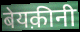
बेयक़ीनी